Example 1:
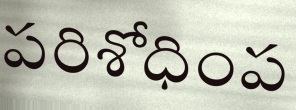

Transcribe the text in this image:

పరిశోధింప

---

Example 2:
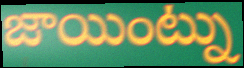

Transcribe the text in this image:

జాయింట్ను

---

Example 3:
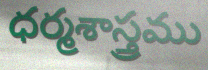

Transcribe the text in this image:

ధర్మశాస్త్రము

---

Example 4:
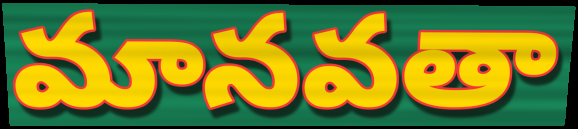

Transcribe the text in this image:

మానవతా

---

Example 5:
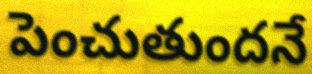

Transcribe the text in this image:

పెంచుతుందనే